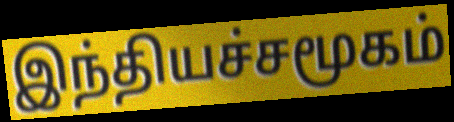
இந்தியச்சமூகம்